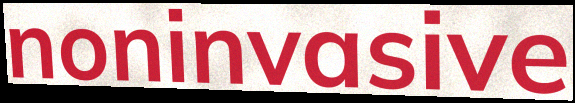
noninvasive